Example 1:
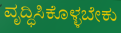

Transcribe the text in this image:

ವೃದ್ಧಿಸಿಕೊಳ್ಳಬೇಕು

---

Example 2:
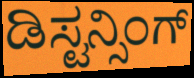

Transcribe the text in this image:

ಡಿಸ್ಟನ್ಸಿಂಗ್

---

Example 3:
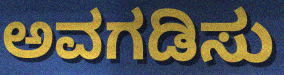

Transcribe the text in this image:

ಅವಗಡಿಸು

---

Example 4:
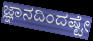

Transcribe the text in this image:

ಜ್ಞಾನದಿಂದಷ್ಟೇ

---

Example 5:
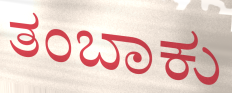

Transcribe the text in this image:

ತಂಬಾಕು